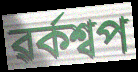
ৱৰ্কশ্বপ